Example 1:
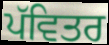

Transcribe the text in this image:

ਪੱਵਿਤਰ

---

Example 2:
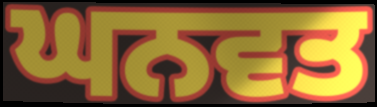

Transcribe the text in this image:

ਘਨਵਤ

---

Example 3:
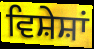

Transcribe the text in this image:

ਵਿਸ਼ੇਸ਼ਾਂ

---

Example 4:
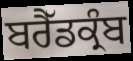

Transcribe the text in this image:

ਬਰੈੱਡਕ੍ਰੰਬ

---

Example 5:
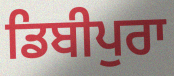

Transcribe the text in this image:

ਡਿਬੀਪੁਰਾ